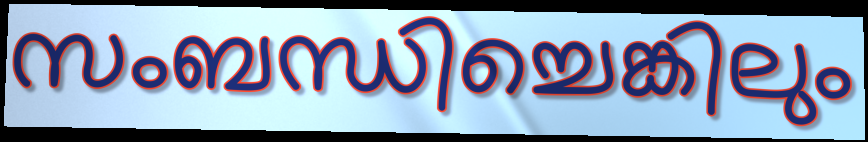
സംബന്ധിച്ചെങ്കിലും